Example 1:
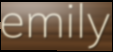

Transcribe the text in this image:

emily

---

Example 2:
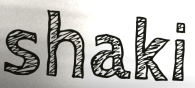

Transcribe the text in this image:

shaki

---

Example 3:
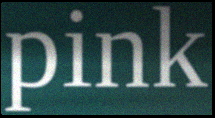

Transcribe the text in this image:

pink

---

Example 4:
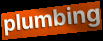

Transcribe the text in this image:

plumbing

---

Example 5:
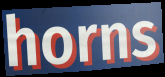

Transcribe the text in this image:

horns